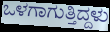
ಒಳಗಾಗುತ್ತಿದ್ದಳು